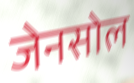
जेनसोल